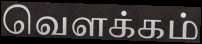
வெளக்கம்